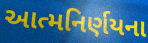
આત્મનિર્ણયના